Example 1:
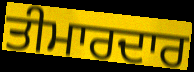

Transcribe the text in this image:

ਤੀਮਾਰਦਾਰ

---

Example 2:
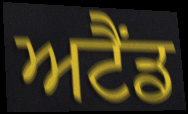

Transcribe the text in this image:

ਅਟੈਂਡ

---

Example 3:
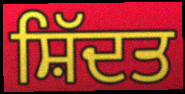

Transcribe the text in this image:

ਸ਼ਿੱਦਤ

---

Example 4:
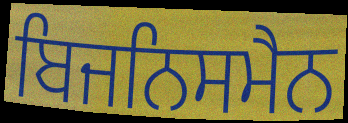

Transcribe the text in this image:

ਬਿਜਨਿਸਮੈਨ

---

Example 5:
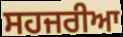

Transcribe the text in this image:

ਸਹਜਰੀਆ